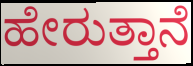
ಹೇರುತ್ತಾನೆ